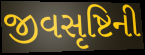
જીવસૃષ્ટિની